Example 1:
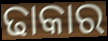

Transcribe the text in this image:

ଢାକାର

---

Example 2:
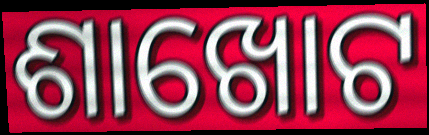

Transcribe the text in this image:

ଶାଖୋଟ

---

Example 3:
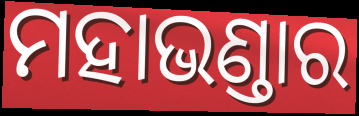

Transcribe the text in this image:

ମହାଭଣ୍ଡାର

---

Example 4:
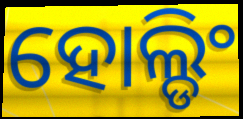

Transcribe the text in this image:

ହୋଲ୍ଡିଂ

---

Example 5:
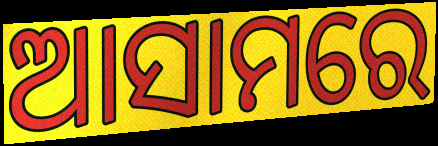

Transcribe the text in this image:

ଆସାମରେ